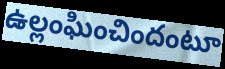
ఉల్లంఘించిందంటూ